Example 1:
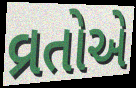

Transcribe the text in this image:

વ્રતોએ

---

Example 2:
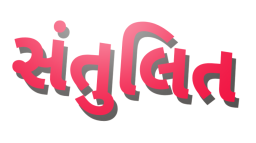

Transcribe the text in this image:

સંતુલિત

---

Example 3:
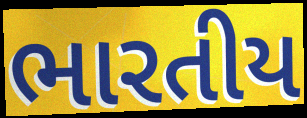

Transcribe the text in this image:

ભારતીય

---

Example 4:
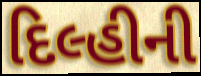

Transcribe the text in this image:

દિલ્હીની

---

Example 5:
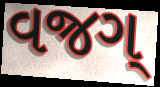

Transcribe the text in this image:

વજ્રગ્